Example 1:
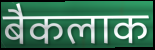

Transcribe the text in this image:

बैकलाक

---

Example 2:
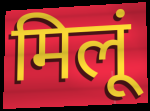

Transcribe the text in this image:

मिलूं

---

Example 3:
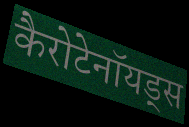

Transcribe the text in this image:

कैरोटेनॉयड्स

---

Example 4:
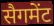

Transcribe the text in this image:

सैगमेंट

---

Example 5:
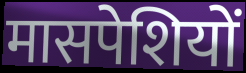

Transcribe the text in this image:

मासपेशियों